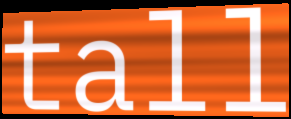
tall